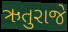
ઋતુરાજે